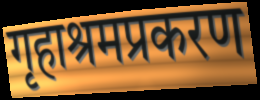
गृहाश्रमप्रकरण